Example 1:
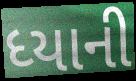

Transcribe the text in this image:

ધ્યાની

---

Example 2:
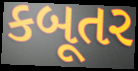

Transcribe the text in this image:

કબૂતર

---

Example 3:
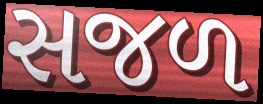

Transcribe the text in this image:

સજળ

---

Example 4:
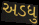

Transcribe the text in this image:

અડધુ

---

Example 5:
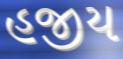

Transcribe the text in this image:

હજીય